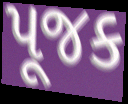
પૂજક